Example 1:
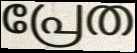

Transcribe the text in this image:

പ്രേത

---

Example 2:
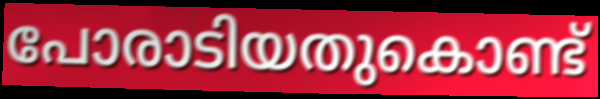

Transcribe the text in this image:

പോരാടിയതുകൊണ്ട്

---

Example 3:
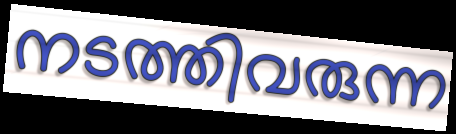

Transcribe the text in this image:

നടത്തിവരുന്ന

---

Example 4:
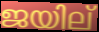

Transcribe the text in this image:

ജയില്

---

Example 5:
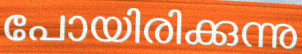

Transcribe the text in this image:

പോയിരിക്കുന്നു